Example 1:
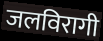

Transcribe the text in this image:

जलविरागी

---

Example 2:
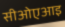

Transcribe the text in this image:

सीओएआइ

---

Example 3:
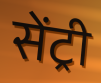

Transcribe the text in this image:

सेंट्री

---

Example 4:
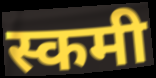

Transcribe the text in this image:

स्कमी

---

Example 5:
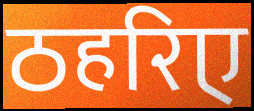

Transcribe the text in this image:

ठहरिए